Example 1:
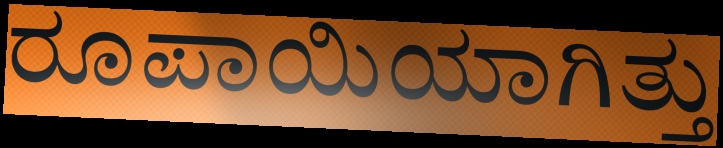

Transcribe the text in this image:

ರೂಪಾಯಿಯಾಗಿತ್ತು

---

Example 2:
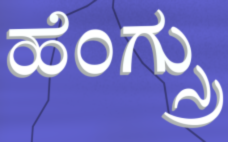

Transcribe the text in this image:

ಹೆಂಗ್ಸ್ರು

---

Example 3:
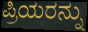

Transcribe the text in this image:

ಪ್ರಿಯರನ್ನು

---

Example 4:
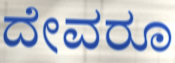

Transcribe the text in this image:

ದೇವರೂ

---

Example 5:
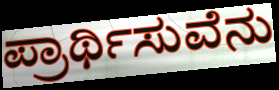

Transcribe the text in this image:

ಪ್ರಾರ್ಥಿಸುವೆನು